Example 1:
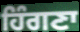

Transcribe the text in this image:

ਹਿੰਗਣਾ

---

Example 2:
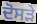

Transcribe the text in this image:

ਦੋਸੜੇ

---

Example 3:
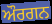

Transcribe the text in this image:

ਔਰਗਨ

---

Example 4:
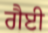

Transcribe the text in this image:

ਗੈਈ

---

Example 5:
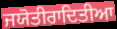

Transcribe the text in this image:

ਜਯੋਤੀਰਾਦਿਤੀਆ